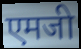
एमजी